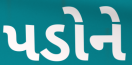
પડોને